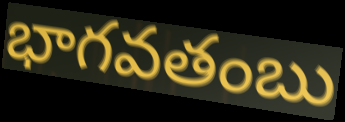
భాగవతంబు